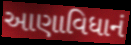
આણાવિધાનં